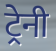
ट्रेनी